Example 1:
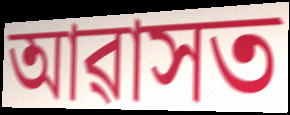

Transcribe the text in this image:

আৱাসত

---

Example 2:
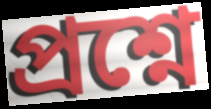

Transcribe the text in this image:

প্ৰশ্নে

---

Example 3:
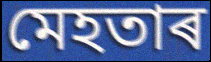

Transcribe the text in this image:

মেহতাৰ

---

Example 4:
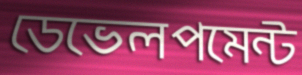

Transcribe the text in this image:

ডেভেলপমেন্ট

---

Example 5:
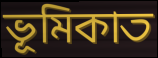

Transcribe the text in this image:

ভূমিকাত